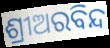
ଶ୍ରୀଅରବିନ୍ଦ